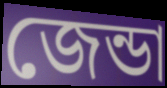
জেন্ডা